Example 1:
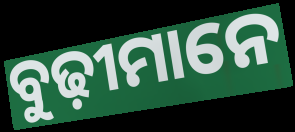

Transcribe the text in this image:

ବୁଢ଼ୀମାନେ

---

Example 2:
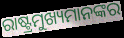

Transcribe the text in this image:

ରାଷ୍ଟ୍ରମୁଖ୍ୟମାନଙ୍କର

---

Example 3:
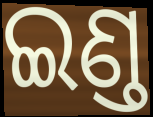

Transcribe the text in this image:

ଇଣ୍ଡ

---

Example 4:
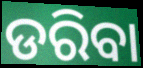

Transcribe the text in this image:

ଡରିବା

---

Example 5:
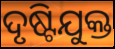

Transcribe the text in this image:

ଦୃଷ୍ଟିଯୁକ୍ତ